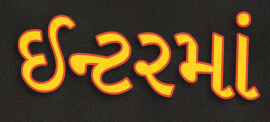
ઈન્ટરમાં